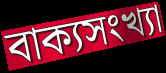
বাক্যসংখ্যা